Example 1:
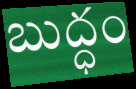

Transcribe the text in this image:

బుద్ధం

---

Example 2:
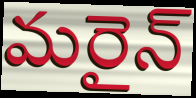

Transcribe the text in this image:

మరైన్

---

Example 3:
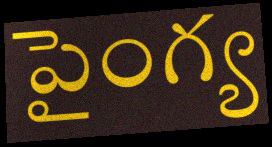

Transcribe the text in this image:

పైంగ్య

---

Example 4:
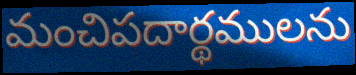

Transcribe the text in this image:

మంచిపదార్థములను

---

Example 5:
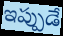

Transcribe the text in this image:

ఇప్పుడే